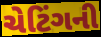
ચેટિંગની